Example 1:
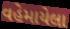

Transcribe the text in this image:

વહેમાયેલા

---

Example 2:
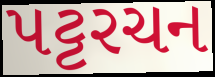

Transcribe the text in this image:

પટ્ટરચન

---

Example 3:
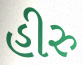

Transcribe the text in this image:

હીરુ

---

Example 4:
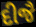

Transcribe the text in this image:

દીજૈ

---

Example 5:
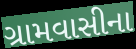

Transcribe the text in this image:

ગ્રામવાસીના